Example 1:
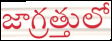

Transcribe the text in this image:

జాగ్రత్తులో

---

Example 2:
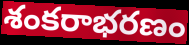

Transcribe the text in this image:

శంకరాభరణం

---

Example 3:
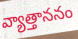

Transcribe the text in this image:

వ్యాత్తాననం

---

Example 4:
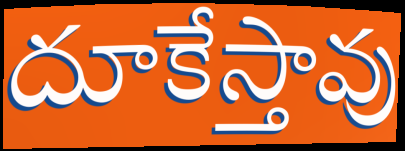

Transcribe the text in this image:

దూకేస్తావు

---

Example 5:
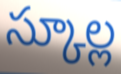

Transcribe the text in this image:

స్కూల్ల